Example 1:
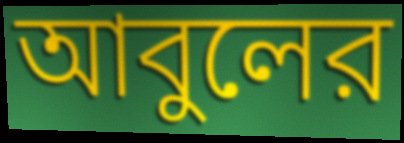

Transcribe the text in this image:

আবুলের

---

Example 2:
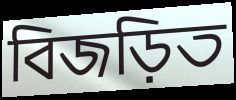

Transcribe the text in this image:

বিজড়িত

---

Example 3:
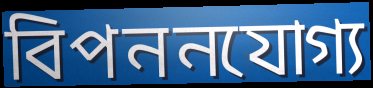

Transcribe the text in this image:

বিপননযোগ্য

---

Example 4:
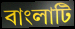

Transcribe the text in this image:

বাংলাটি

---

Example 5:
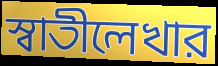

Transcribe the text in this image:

স্বাতীলেখার